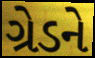
ગ્રેડને